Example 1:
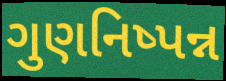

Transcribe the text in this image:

ગુણનિષ્પન્ન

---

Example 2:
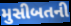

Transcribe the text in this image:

મુસીબતની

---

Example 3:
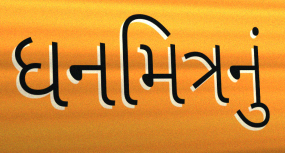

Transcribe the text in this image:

ધનમિત્રનું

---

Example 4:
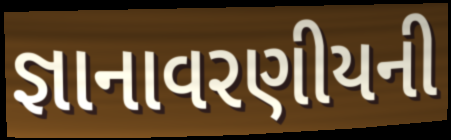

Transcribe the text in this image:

જ્ઞાનાવરણીયની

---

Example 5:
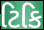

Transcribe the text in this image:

ટિકિ